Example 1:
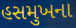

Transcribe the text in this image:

હસમુખના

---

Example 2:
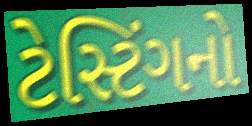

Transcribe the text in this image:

ટેસ્ટિંગનો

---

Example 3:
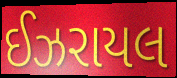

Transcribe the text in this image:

ઈઝરાયલ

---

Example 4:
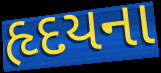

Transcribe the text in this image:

હૃદયના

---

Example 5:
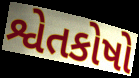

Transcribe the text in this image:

શ્વેતકોષો